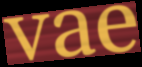
vae